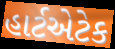
હાર્ટએટેક